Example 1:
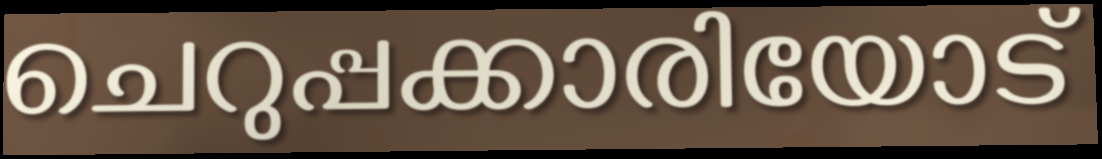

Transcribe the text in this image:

ചെറുപ്പക്കാരിയോട്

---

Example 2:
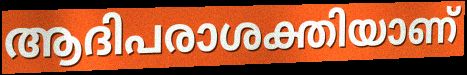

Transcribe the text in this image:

ആദിപരാശക്തിയാണ്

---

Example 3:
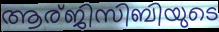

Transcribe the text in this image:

ആര്ജിസിബിയുടെ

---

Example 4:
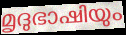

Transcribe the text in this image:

മൃദുഭാഷിയും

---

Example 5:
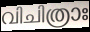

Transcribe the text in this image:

വിചിത്രാഃ